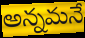
అన్నమనే